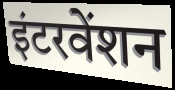
इंटरवेंशन